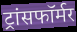
ट्रांसफॉर्मर